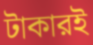
টাকারই